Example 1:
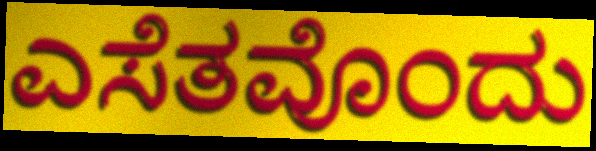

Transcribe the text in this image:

ಎಸೆತವೊಂದು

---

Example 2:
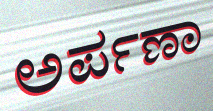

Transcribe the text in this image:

ಅರ್ಪಣಾ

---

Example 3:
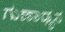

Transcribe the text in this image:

ಗುಣಾಢ್ಯನ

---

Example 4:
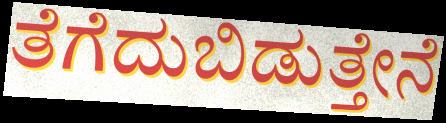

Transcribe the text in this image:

ತೆಗೆದುಬಿಡುತ್ತೇನೆ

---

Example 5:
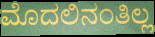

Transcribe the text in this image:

ಮೊದಲಿನಂತಿಲ್ಲ